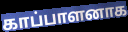
காப்பாளனாக